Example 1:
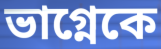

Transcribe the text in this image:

ভাগ্নেকে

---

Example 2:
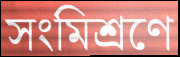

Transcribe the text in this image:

সংমিশ্রণে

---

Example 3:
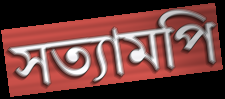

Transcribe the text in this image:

সত্যামপি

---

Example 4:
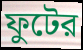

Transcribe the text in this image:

ফুটের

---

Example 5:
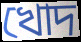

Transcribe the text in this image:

খোদ